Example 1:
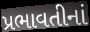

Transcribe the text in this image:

પ્રભાવતીનાં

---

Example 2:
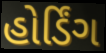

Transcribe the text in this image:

હોર્ડિંગ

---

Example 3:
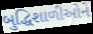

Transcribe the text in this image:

બુદ્ધિશાળીઓને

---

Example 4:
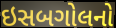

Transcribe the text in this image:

ઇસબગોલનો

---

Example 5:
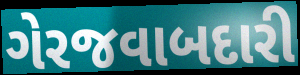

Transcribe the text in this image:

ગેરજવાબદારી